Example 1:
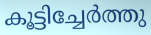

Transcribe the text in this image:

കൂട്ടിച്ചേർത്തു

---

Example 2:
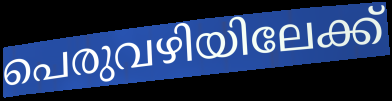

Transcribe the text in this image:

പെരുവഴിയിലേക്ക്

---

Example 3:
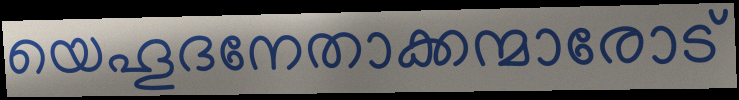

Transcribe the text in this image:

യെഹൂദനേതാക്കന്മാരോട്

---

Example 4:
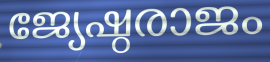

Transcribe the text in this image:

ജ്യേഷ്ഠരാജം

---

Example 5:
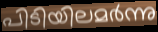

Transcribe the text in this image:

പിടിയിലമർന്നു